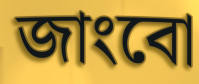
জাংবো